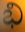
భి